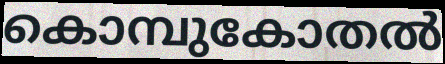
കൊമ്പുകോതൽ